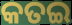
କତଇ